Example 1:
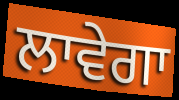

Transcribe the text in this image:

ਲਾਵੇਗਾ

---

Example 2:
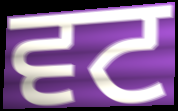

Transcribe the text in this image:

ਵਟ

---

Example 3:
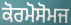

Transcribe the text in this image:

ਕੋਰਮੋਸੋਮਜ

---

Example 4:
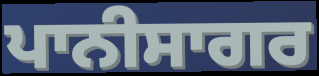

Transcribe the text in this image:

ਪਾਨੀਸਾਗਰ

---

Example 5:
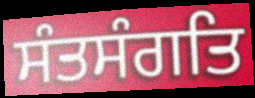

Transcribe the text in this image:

ਸੰਤਸੰਗਤਿ